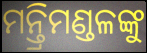
ମନ୍ତ୍ରିମଣ୍ଡଳଙ୍କୁ